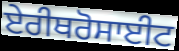
ਏਰੀਥਰੋਸਾਈਟ